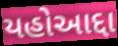
યહોઆદ્દા